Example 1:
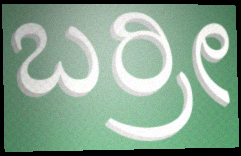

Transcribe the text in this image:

ಬರ್ರೀ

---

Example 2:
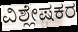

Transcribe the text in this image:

ವಿಶ್ಲೇಷಕರ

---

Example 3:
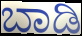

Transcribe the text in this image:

ಬಾಡಿ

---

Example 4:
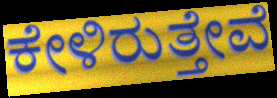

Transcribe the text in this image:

ಕೇಳಿರುತ್ತೇವೆ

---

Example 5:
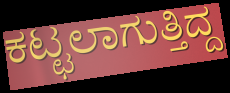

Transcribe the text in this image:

ಕಟ್ಟಲಾಗುತ್ತಿದ್ದ